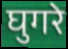
घुगरे